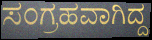
ಸಂಗ್ರಹವಾಗಿದ್ದ